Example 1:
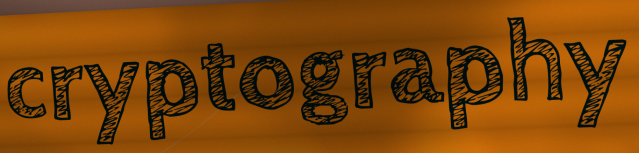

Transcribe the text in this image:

cryptography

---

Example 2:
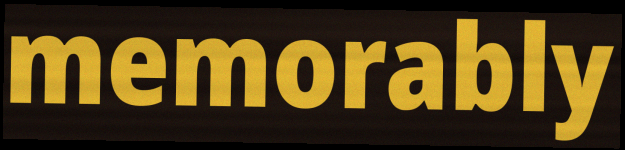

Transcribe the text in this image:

memorably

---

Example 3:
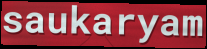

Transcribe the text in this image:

saukaryam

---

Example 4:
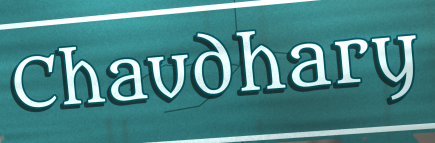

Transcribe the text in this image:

Chaudhary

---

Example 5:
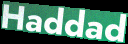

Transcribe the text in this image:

Haddad